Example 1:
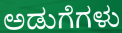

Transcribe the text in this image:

ಅಡುಗೆಗಳು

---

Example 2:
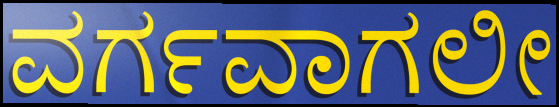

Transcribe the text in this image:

ವರ್ಗವಾಗಲೀ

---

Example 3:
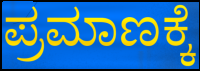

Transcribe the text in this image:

ಪ್ರಮಾಣಕ್ಕೆ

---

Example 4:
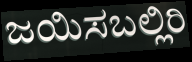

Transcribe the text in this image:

ಜಯಿಸಬಲ್ಲಿರಿ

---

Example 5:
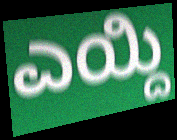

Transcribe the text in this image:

ಎಯ್ದಿ